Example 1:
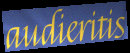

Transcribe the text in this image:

audieritis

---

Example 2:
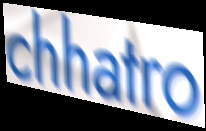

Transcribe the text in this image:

chhatro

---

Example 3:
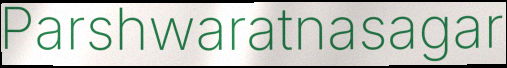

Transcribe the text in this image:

Parshwaratnasagar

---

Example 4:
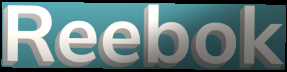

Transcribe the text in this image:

Reebok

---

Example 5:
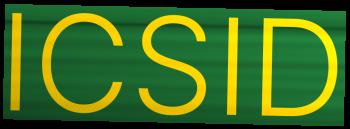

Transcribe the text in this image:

ICSID